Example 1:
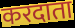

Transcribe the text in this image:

करदाता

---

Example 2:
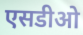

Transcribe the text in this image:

एसडीओ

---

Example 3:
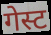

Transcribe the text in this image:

गेस्ट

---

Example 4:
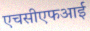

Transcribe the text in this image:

एचसीएफआई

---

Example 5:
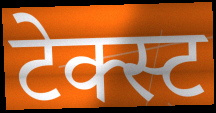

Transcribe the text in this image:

टेक्स्ट